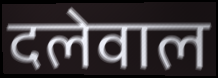
दलेवाल